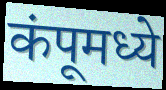
कंपूमध्ये